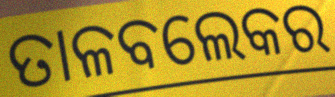
ତାଳବଲେକର